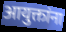
आयुक्तांना